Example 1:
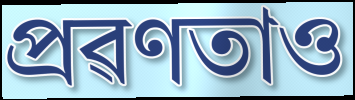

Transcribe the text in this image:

প্ৰৱণতাও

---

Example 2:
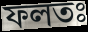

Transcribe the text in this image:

ফলতঃ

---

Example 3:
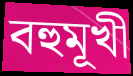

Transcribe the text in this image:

বহুমূখী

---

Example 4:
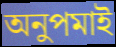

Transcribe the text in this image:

অনুপমাই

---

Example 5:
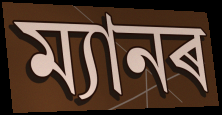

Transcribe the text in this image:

ম্যানৰ